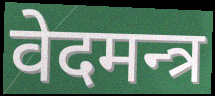
वेदमन्त्र